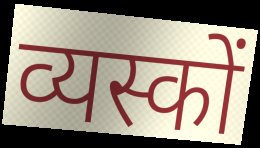
व्यस्कों